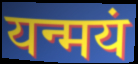
यन्मयं